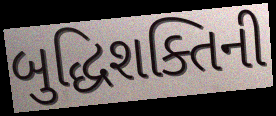
બુદ્ધિશક્તિની